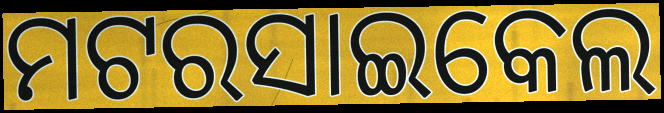
ମଟରସାଇକେଲ